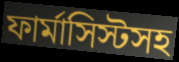
ফার্মাসিস্টসহ